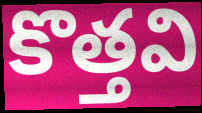
కొత్తవి